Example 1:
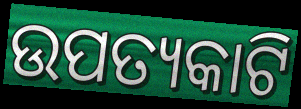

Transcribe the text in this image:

ଉପତ୍ୟକାଟି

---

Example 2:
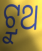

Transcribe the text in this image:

ଟ୍ରୁଥ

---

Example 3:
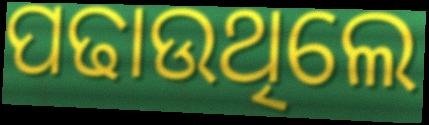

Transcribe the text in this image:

ପଢାଉଥିଲେ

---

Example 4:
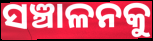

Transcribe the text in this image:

ସଞ୍ଚାଳନକୁ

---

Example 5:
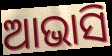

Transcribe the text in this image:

ଆଭାସି